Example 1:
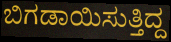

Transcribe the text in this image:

ಬಿಗಡಾಯಿಸುತ್ತಿದ್ದ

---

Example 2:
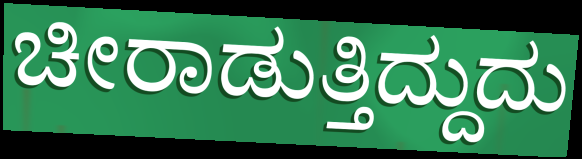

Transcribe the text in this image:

ಚೀರಾಡುತ್ತಿದ್ದುದು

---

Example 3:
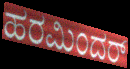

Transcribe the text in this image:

ಹರಮಿಂದರ್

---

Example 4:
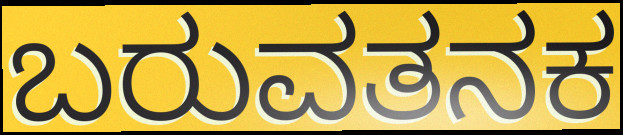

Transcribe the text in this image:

ಬರುವತನಕ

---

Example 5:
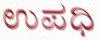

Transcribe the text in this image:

ಉಪಧಿ